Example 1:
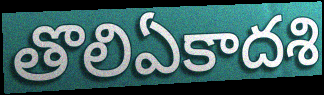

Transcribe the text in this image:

తొలిఏకాదశి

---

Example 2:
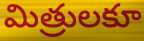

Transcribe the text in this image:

మిత్రులకూ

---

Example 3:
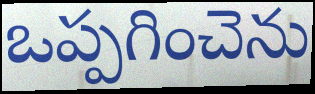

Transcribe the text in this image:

ఒప్పగించెను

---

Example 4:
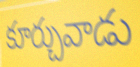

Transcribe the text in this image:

కూర్చువాడు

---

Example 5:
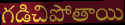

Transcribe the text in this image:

గడిచిపోతాయి